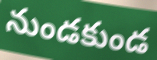
నుండకుండ